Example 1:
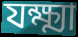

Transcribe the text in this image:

যক্ষ্মা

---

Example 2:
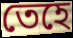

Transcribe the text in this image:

তেহে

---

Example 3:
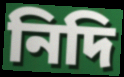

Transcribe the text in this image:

নিদি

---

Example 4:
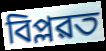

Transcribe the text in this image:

বিপ্লৱত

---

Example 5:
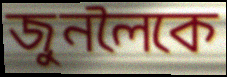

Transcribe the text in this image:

জুনলৈকে